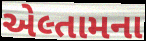
એલ્તામના